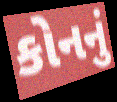
કોનનું